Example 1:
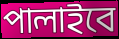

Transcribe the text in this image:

পালাইবে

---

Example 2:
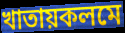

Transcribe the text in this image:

খাতায়কলমে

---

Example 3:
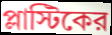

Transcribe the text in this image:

প্লাস্টিকের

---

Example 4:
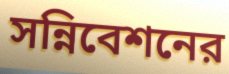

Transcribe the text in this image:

সন্নিবেশনের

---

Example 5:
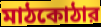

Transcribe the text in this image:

মাঠকোঠার